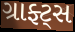
ગ્રાફ્ટ્સ